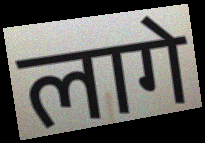
लागे